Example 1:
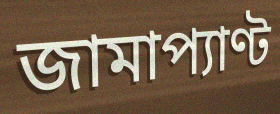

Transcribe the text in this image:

জামাপ্যাণ্ট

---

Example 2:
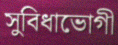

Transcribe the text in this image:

সুবিধাভোগী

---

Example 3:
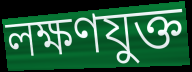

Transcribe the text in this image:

লক্ষণযুক্ত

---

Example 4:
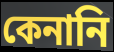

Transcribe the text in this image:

কেনানি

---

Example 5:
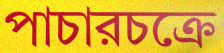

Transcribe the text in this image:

পাচারচক্রে